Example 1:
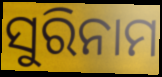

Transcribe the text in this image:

ସୁରିନାମ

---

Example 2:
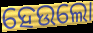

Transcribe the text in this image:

ହେଉଲୋ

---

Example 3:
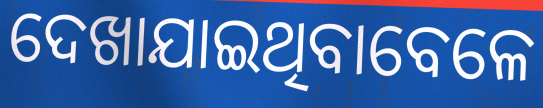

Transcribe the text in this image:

ଦେଖାଯାଇଥିବାବେଳେ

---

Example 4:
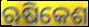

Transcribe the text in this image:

ଋଷିକେଶ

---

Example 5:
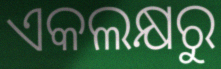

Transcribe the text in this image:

ଏକଲକ୍ଷରୁ